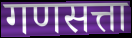
गणसत्ता